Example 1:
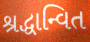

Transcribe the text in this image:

શ્રદ્ધાન્વિત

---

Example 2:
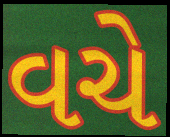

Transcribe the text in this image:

વચે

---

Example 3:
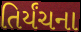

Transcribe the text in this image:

તિર્યંચના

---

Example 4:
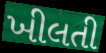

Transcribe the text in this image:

ખીલતી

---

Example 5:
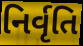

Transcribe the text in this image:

નિર્વૃતિ